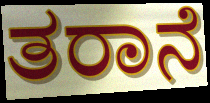
ತರಾನೆ